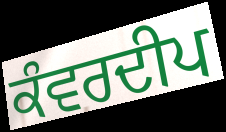
ਕੰਵਰਦੀਪ